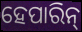
ହେପାରିନ୍